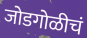
जोडगोळीचं